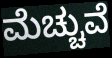
ಮೆಚ್ಚುವೆ